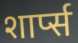
शार्प्स